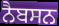
ਨੈਬਸਨ